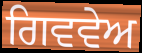
ਗਿਵਵੇਅ